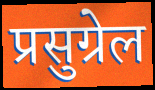
प्रसुग्रेल